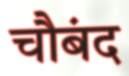
चौबंद